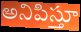
అనిపిస్తూ